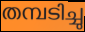
തമ്പടിച്ചു